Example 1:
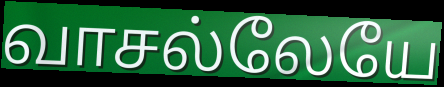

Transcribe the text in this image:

வாசல்லேயே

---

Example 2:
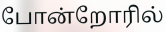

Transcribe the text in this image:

போன்றோரில்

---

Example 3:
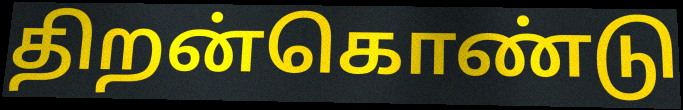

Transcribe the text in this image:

திறன்கொண்டு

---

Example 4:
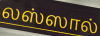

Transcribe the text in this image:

லஸ்ஸால்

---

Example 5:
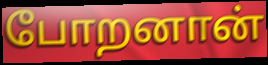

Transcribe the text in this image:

போறனான்